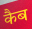
कैब